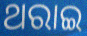
ଥରାଇ